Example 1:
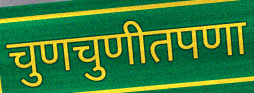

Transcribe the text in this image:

चुणचुणीतपणा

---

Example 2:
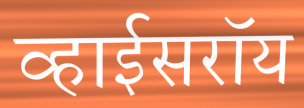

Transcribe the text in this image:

व्हाईसरॉय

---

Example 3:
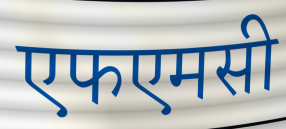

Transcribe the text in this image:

एफएमसी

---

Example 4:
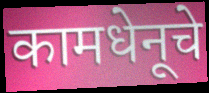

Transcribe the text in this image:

कामधेनूचे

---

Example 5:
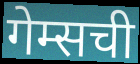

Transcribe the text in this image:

गेम्सची